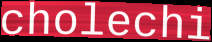
cholechi